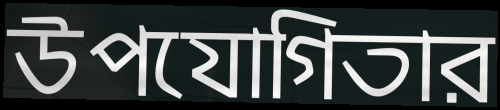
উপযোগিতার